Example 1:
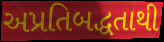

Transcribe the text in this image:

અપ્રતિબદ્ધતાથી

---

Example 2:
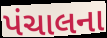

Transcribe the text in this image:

પંચાલના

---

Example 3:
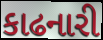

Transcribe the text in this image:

કાઢનારી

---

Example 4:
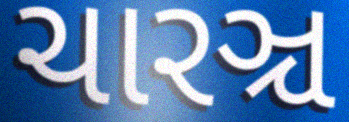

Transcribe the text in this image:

ચારઞ્ચ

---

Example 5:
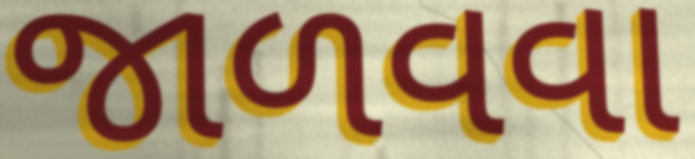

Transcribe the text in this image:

જાળવવા